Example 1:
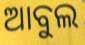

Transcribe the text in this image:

ଆବୁଲ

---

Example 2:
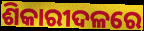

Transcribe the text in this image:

ଶିକାରୀଦଳରେ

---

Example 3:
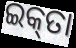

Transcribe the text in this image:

ଇକ୍‌ତା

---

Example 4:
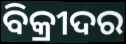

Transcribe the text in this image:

ବିକ୍ରୀଦର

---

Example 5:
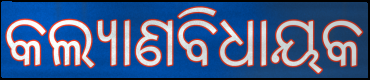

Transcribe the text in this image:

କଲ୍ୟାଣବିଧାୟକ